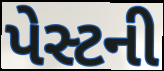
પેસ્ટની